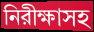
নিরীক্ষাসহ